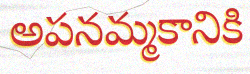
అపనమ్మకానికి